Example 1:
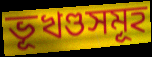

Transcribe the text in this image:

ভূখণ্ডসমূহ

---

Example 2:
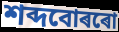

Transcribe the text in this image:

শব্দবোৰৰো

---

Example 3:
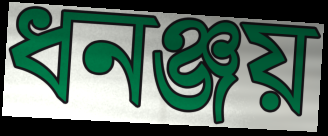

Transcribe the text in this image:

ধনঞ্জয়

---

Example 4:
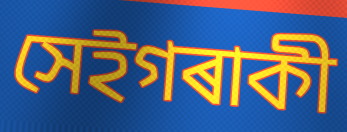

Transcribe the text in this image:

সেইগৰাকী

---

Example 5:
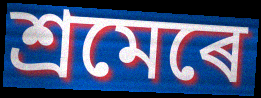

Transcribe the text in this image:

শ্ৰমেৰে